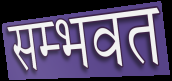
सम्भवत